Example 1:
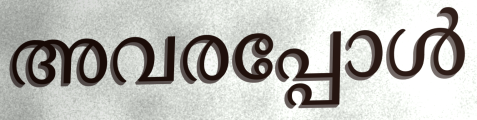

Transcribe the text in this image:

അവരപ്പോൾ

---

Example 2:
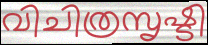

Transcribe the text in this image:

വിചിത്രസൃഷ്ടി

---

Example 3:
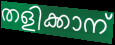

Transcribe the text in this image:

തളിക്കാന്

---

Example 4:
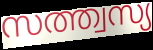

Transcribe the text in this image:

സത്ത്വസ്യ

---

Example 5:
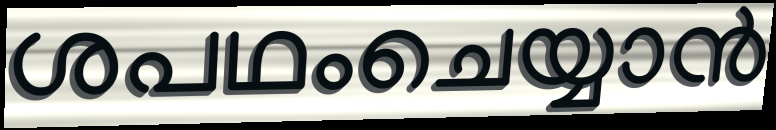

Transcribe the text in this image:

ശപഥംചെയ്യാൻ